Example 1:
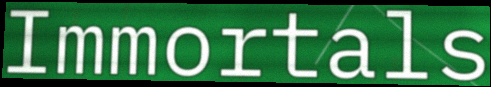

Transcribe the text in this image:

Immortals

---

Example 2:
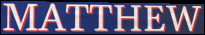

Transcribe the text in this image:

MATTHEW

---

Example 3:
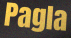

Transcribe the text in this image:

Pagla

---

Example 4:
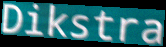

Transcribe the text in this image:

Dikstra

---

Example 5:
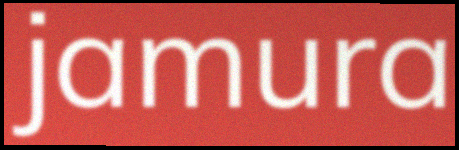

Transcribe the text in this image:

jamura